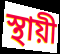
স্থায়ী